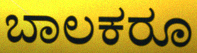
ಬಾಲಕರೂ